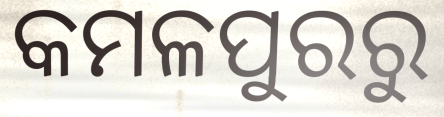
କମଳପୁରରୁ